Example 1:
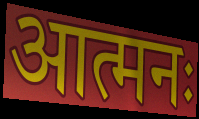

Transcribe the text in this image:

आत्मनः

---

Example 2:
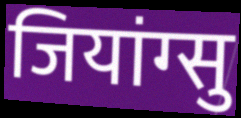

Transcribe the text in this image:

जियांग्सु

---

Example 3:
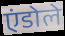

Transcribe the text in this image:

एंडोले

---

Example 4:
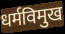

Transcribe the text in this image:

धर्मविमुख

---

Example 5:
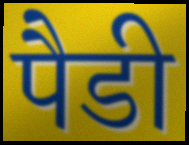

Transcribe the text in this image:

पैडी